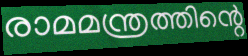
രാമമന്ത്രത്തിന്റെ